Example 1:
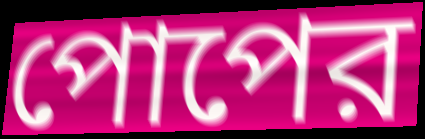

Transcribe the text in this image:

পোপের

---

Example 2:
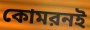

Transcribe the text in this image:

কোমরনই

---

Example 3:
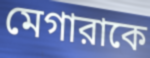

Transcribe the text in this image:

মেগারাকে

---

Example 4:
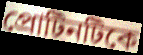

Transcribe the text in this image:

প্রোটিনটিকে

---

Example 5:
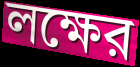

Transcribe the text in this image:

লক্ষের